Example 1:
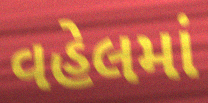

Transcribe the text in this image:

વહેલમાં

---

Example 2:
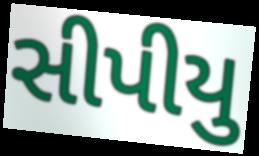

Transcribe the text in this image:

સીપીયુ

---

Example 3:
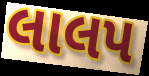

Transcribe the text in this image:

લાલપ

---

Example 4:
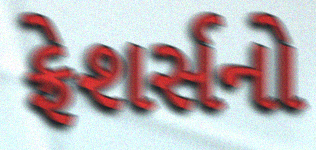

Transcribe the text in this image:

ફ્રેશર્સનો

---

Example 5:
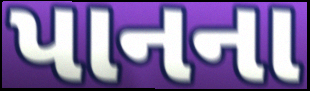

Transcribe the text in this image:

પાનના